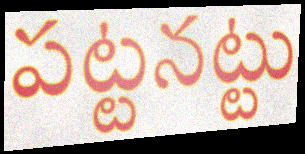
పట్టనట్టు